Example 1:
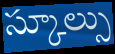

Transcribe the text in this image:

స్కూల్సు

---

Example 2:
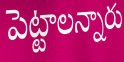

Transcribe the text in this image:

పెట్టాలన్నారు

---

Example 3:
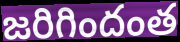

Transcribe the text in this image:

జరిగిందంత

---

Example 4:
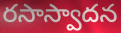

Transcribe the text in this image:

రసాస్వాదన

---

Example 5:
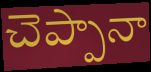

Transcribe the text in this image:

చెప్పానా